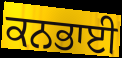
ਕਨਭਾਈ